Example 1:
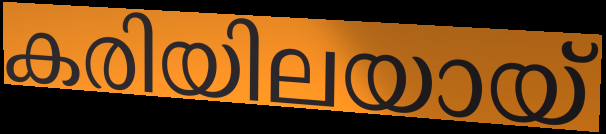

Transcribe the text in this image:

കരിയിലയായ്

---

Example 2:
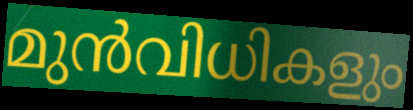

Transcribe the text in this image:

മുൻവിധികളും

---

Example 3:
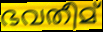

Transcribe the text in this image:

ഭവതീമ്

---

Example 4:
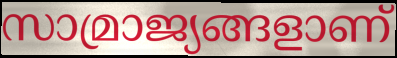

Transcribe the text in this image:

സാമ്രാജ്യങ്ങളാണ്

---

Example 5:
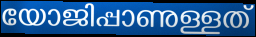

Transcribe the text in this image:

യോജിപ്പാണുള്ളത്